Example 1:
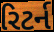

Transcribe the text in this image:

રિટર્ન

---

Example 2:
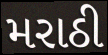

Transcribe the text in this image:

મરાઠી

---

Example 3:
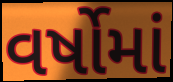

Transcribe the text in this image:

વર્ષોમાં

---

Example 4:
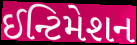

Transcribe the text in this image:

ઈન્ટિમેશન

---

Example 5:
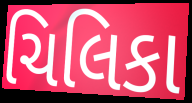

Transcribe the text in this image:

ચિલિકા